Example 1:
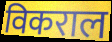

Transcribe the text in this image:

विकराल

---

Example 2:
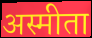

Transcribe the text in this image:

अस्मीता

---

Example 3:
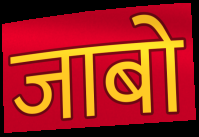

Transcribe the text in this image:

जाबो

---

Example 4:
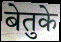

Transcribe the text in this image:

बेतुके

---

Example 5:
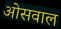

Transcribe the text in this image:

ओसवाल